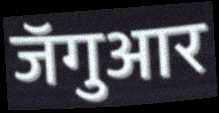
जॅगुआर